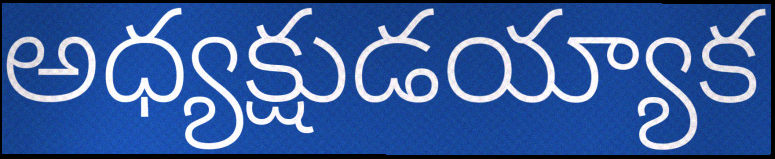
అధ్యక్షుడయ్యాక